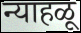
न्याहळू